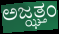
ಅಜ್ಝತ್ತಂ